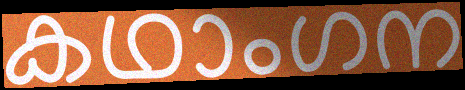
കഥാംഗന